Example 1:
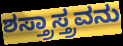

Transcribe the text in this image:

ಶಸ್ತ್ರಾಸ್ತ್ರವನು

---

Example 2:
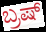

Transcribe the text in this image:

ಬ್ರಷ್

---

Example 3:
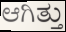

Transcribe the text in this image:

ಆಗಿತ್ತು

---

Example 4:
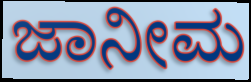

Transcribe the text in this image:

ಜಾನೀಮ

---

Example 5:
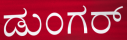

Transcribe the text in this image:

ಡುಂಗರ್